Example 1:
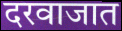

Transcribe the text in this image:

दरवाजात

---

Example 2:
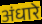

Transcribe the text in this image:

अंधारे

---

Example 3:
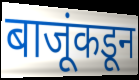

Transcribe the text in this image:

बाजूंकडून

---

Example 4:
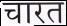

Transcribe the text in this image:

चारत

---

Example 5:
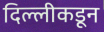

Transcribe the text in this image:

दिल्लीकडून